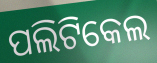
ପଲିଟିକେଲ